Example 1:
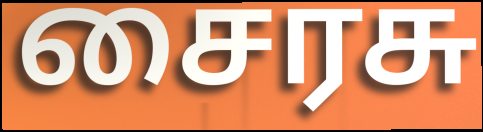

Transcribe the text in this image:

சைரசு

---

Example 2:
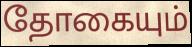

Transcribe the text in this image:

தோகையும்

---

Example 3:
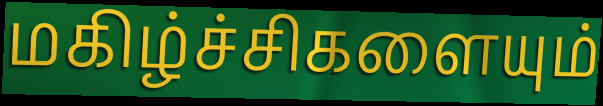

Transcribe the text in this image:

மகிழ்ச்சிகளையும்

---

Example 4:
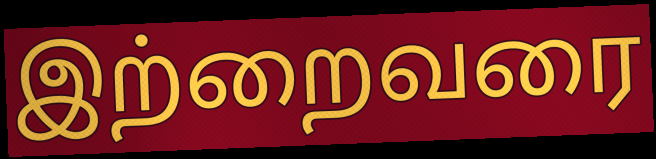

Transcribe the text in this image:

இற்றைவரை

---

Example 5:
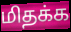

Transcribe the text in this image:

மிதக்க